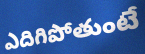
ఎదిగిపోతుంటే